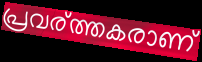
പ്രവര്ത്തകരാണ്